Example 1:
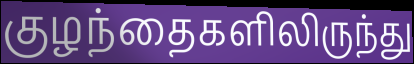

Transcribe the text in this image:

குழந்தைகளிலிருந்து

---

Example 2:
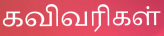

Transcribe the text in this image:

கவிவரிகள்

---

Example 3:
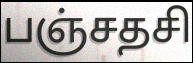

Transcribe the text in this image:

பஞ்சதசி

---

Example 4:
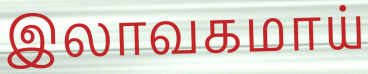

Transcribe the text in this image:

இலாவகமாய்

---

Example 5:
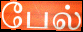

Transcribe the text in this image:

பேல்